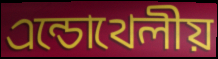
এন্ডোথেলীয়